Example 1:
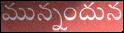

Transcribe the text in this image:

మున్నందున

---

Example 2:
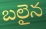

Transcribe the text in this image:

బలైన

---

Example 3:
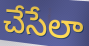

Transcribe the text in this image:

చేసేలా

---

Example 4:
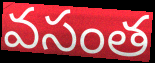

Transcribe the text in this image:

వసంత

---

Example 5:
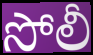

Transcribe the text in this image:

సోలీ